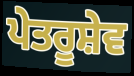
ਪੇਤਰੂਸ਼ੇਵ